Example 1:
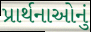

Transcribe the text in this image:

પ્રાર્થનાઓનું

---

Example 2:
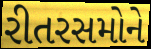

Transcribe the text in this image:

રીતરસમોને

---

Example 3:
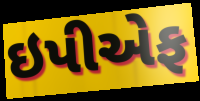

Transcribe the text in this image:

ઇપીએફ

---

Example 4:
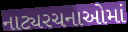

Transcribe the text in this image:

નાટ્યરચનાઓમાં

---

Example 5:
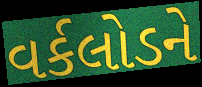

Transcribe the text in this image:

વર્કલોડને